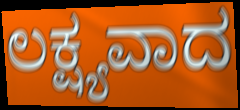
ಲಕ್ಷ್ಯವಾದ